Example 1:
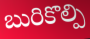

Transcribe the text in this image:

బురికొల్పి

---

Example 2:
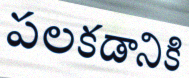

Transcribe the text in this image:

పలకడానికి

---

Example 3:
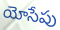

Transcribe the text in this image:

యోసేపు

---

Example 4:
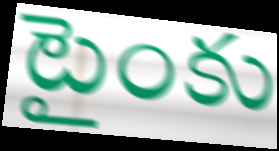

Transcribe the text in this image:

టైంకు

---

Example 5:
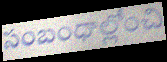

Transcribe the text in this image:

సంబంధాల్లోంచి